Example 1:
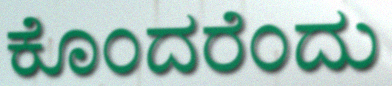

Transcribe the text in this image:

ಕೊಂದರೆಂದು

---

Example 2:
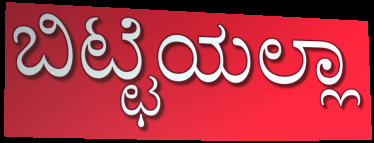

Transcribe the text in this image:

ಬಿಟ್ಟೆಯಲ್ಲಾ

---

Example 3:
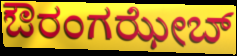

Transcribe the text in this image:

ಔರಂಗಝೇಬ್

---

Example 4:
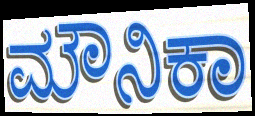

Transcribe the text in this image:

ಮೌನಿಕಾ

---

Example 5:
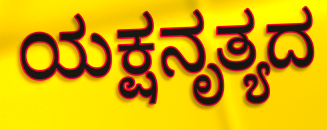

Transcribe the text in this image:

ಯಕ್ಷನೃತ್ಯದ